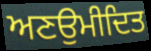
ਅਣਉਮੀਦਿਤ